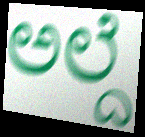
ಅಲ್ದೆ